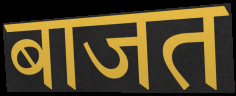
बाजत